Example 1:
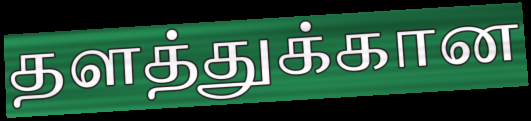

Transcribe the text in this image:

தளத்துக்கான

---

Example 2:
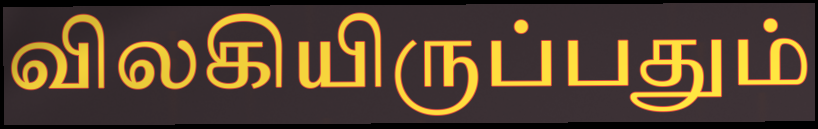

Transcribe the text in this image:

விலகியிருப்பதும்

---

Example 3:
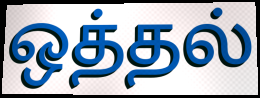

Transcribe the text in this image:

ஒத்தல்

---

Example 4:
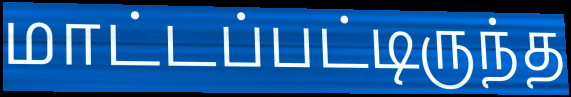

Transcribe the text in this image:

மாட்டப்பட்டிருந்த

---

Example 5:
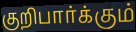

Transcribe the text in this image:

குறிபார்க்கும்